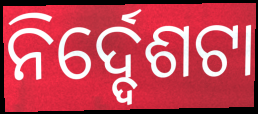
ନିର୍ଦ୍ଦେଶଟା